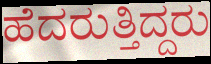
ಹೆದರುತ್ತಿದ್ದರು